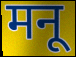
मनू